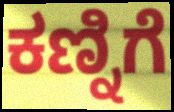
ಕಣ್ನಿಗೆ